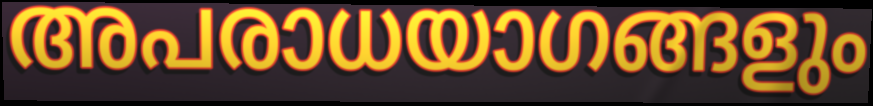
അപരാധയാഗങ്ങളും